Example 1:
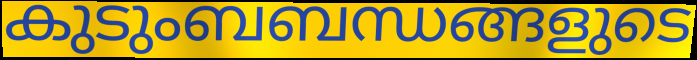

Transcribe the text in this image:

കുടുംബബന്ധങ്ങളുടെ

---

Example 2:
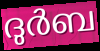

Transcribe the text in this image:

ദുർബ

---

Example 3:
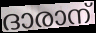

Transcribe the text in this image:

ദാരാന്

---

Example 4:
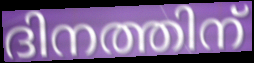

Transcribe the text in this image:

ദിനത്തിന്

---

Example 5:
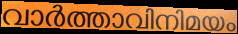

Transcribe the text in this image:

വാർത്താവിനിമയം